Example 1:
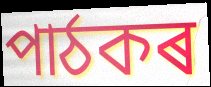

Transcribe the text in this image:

পাঠকৰ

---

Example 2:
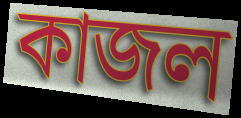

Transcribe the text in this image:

কাজল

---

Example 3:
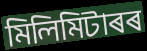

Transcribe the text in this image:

মিলিমিটাৰৰ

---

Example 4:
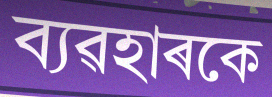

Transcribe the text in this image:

ব্যৱহাৰকে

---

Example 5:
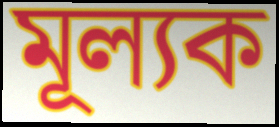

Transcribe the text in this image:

মূল্যক